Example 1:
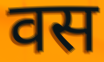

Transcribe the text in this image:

वस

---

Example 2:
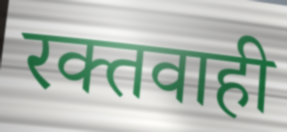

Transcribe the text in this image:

रक्तवाही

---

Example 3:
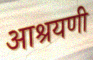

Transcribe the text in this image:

आश्रयणी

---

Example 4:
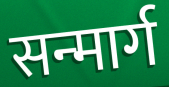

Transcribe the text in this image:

सन्‍मार्ग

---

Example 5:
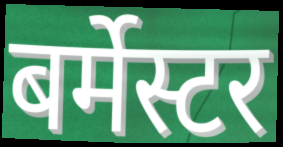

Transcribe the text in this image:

बर्मेस्टर